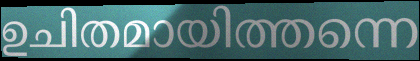
ഉചിതമായിത്തന്നെ